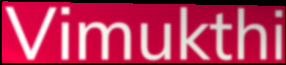
Vimukthi